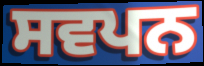
ਸਵਪਨ